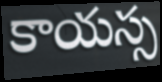
కాయస్స